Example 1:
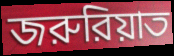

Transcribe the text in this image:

জরুরিয়াত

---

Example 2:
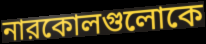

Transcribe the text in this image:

নারকোলগুলোকে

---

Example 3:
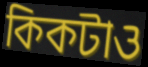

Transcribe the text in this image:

কিকটাও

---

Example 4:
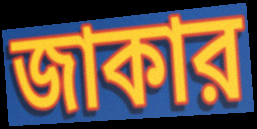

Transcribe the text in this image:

জাকার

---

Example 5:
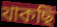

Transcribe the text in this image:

থাকছি